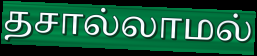
தசால்லாமல்